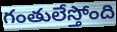
గంతులేస్తోంది